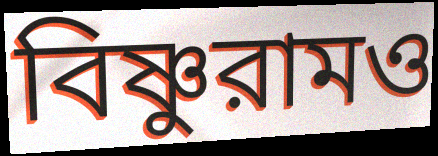
বিষ্ণুরামও